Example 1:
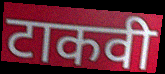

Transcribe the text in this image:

टाकवी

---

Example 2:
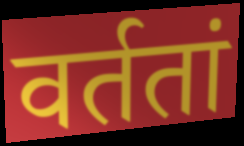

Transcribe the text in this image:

वर्ततां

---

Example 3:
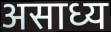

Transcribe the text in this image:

असाध्य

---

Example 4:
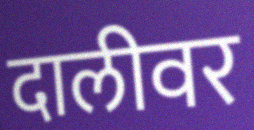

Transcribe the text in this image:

दालीवर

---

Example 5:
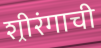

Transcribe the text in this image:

श्रीरंगाची